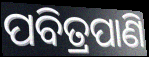
ପବିତ୍ରପାଣି